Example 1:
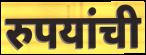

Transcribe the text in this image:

रुपयांची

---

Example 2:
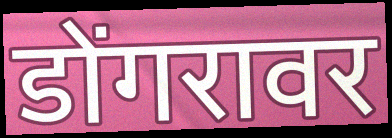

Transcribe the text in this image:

डोंगरावर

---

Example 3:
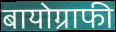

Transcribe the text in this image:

बायोग्राफी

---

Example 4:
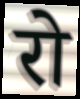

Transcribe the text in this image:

रो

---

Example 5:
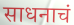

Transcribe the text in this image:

साधनाचं